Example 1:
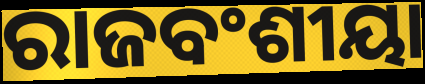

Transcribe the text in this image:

ରାଜବଂଶୀୟା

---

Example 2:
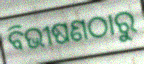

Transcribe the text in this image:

ବିଭୀଷଣଠାରୁ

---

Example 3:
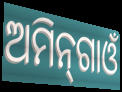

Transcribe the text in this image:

ଅମିନ୍‌ଗାଓଁ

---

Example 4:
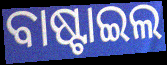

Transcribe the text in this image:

ବାଷ୍ଟାଇଲ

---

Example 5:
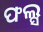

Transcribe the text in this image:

ଫଲ୍ସ